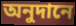
অনুদানে